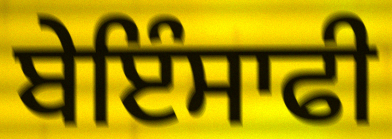
ਬੇਇੰਸਾਫੀ